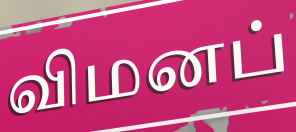
விமனப்